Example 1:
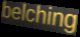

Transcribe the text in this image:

belching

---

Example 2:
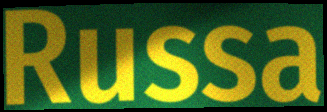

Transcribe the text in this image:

Russa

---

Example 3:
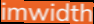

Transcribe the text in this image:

imwidth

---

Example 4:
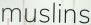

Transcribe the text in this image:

muslins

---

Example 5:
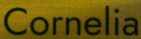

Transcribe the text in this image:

Cornelia